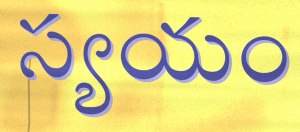
స్యయం